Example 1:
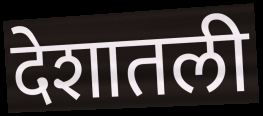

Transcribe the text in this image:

देशातली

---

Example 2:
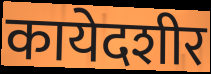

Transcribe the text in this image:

कायेदशीर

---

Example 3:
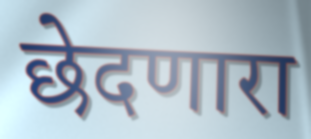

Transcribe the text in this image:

छेदणारा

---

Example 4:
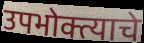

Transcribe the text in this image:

उपभोक्त्याचे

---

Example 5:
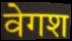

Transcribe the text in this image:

वेगश